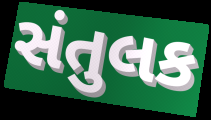
સંતુલક